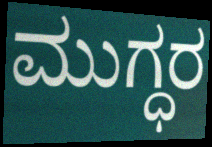
ಮುಗ್ಧರ